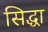
सिद्धा